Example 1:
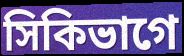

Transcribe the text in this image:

সিকিভাগে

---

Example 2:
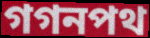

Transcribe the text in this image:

গগনপথ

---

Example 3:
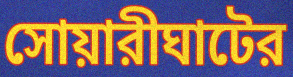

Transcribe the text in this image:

সোয়ারীঘাটের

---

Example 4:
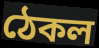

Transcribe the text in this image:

ঠেকল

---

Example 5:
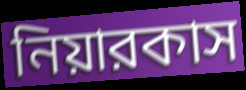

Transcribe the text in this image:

নিয়ারকাস